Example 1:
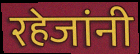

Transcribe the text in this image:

रहेजांनी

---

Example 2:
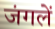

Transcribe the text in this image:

जंगलें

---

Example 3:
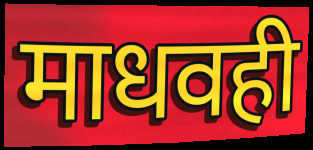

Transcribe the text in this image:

माधवही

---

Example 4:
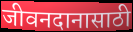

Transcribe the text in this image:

जीवनदानासाठी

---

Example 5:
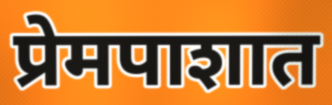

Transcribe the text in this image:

प्रेमपाशात